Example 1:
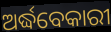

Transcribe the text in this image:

ଅର୍ଦ୍ଧବେକାରୀ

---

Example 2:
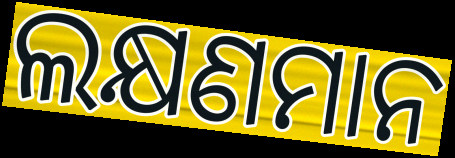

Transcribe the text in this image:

ଲକ୍ଷଣମାନ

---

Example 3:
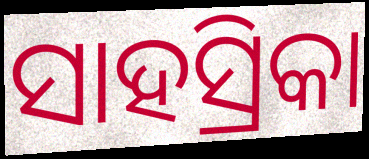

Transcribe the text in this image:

ସାହସ୍ରିକା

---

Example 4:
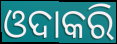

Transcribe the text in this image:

ଓଦାକରି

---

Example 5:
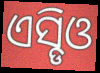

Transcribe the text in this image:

ଏସ୍ଡିଓ